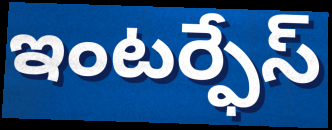
ఇంటర్ఫేస్